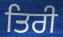
ਤਿਰੀ